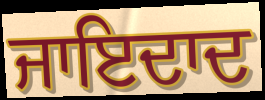
ਜਾਇਦਾਦ